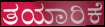
ತಯಾರಿಕೆ